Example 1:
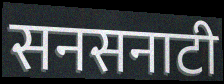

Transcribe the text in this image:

सनसनाटी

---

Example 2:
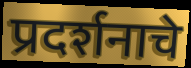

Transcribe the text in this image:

प्रदर्शनाचे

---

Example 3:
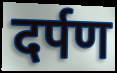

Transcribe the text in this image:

दर्पण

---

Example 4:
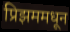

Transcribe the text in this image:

प्रिझममधून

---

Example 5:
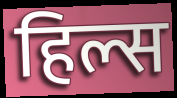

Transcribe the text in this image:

हिल्स